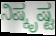
ನಿಷ್ಕೃಷ್ಟ